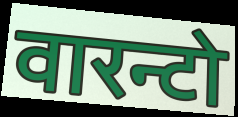
वारन्टो